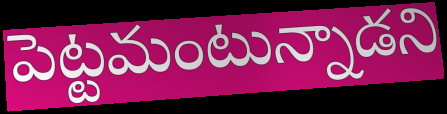
పెట్టమంటున్నాడని